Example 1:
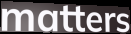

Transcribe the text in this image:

matters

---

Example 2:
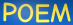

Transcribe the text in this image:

POEM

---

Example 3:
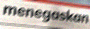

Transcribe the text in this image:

menegaskan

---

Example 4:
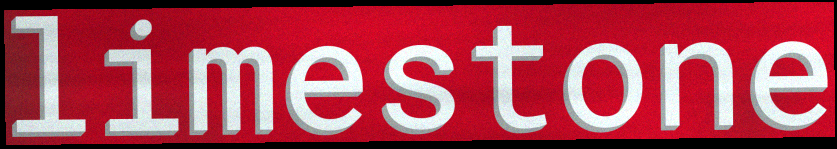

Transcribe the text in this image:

limestone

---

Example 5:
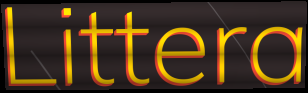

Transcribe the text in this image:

Littera